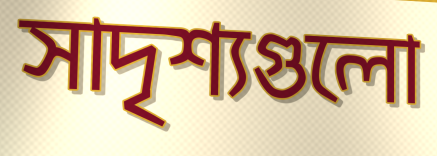
সাদৃশ্যগুলো